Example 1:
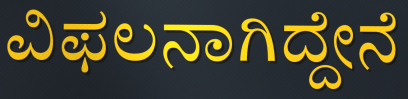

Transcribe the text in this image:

ವಿಫಲನಾಗಿದ್ದೇನೆ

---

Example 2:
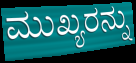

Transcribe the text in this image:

ಮುಖ್ಯರನ್ನು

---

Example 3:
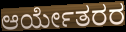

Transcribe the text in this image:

ಆರ್ಯೇತರರ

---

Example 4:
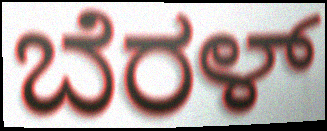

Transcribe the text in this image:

ಬೆರಳ್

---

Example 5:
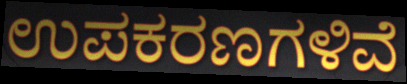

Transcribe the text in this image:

ಉಪಕರಣಗಳಿವೆ